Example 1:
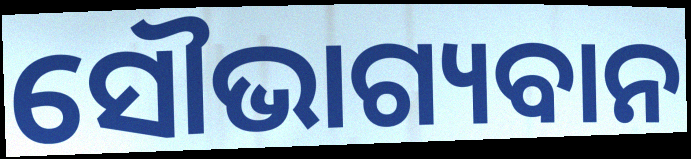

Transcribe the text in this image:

ସୌଭାଗ୍ୟବାନ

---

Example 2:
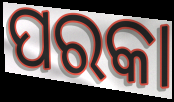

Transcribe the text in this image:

ପରକା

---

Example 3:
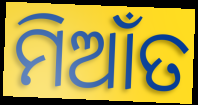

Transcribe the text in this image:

ମିଆଁତ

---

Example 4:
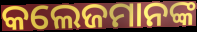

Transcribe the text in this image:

କଲେଜମାନଙ୍କ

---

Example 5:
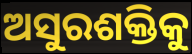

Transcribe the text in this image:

ଅସୁରଶକ୍ତିକୁ